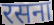
रसना